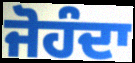
ਜੋਹੰਦਾ